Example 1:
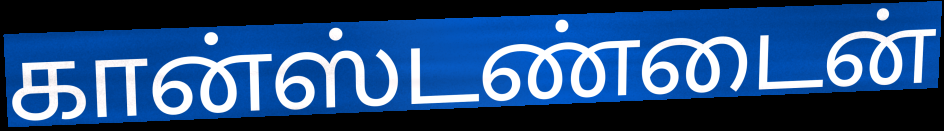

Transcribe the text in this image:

கான்ஸ்டண்டைன்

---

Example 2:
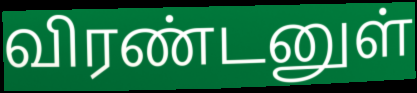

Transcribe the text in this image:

விரண்டனுள்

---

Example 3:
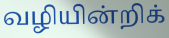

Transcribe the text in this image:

வழியின்றிக்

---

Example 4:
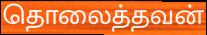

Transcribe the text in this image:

தொலைத்தவன்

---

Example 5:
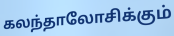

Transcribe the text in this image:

கலந்தாலோசிக்கும்